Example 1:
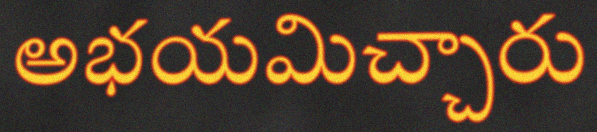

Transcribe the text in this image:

అభయమిచ్చారు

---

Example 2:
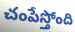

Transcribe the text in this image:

చంపేస్తోంది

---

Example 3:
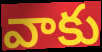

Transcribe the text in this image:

వాకు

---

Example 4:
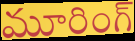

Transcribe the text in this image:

మూరింగ్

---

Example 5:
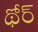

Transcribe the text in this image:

థోర్